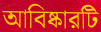
আবিষ্কারটি